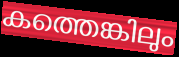
കത്തെങ്കിലും